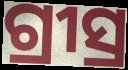
ଗ୍ରୀସ୍ର